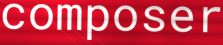
composer